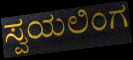
ಸ್ವಯಲಿಂಗ